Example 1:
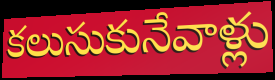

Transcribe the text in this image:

కలుసుకునేవాళ్లు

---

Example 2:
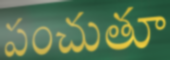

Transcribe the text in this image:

పంచుతూ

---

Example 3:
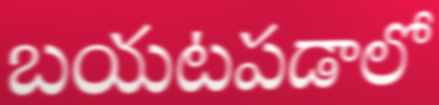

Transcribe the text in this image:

బయటపడాలో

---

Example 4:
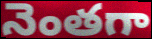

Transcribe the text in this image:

నెంతగా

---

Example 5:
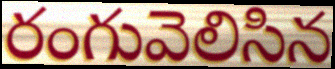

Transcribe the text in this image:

రంగువెలిసిన